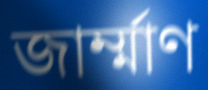
জার্ম্মাণ